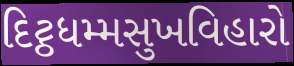
દિટ્ઠધમ્મસુખવિહારો